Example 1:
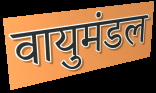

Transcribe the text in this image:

वायुमंडल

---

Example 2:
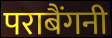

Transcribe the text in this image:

पराबैंगनी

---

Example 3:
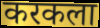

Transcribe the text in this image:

करकला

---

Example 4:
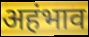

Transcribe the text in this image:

अहंभाव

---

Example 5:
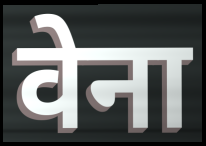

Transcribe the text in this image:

वेना